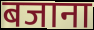
बजाना